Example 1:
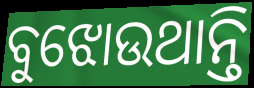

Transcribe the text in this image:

ବୁଝୋଉଥାନ୍ତି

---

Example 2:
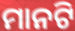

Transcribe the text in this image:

ମାନଟି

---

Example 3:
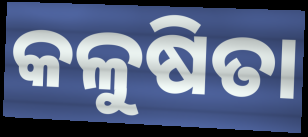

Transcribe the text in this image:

କଳୁଷିତା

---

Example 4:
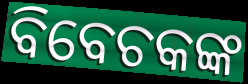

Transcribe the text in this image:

ବିବେଚକଙ୍କ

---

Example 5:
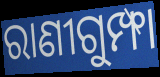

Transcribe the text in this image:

ରାଣୀଗୁମ୍ଫା